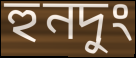
হুনদুং